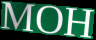
MOH